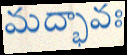
మద్భావః